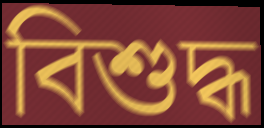
বিশুদ্ধ